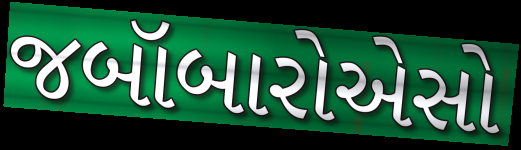
જબૉબારોએસો